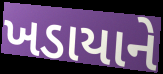
ખડાયાને